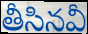
తీసినవీ